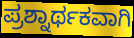
ಪ್ರಶ್ನಾರ್ಥಕವಾಗಿ